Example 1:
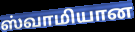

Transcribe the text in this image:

ஸ்வாமியான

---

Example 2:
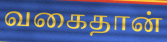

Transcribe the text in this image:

வகைதான்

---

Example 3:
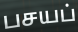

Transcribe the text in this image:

பசயப்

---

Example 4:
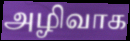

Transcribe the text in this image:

அழிவாக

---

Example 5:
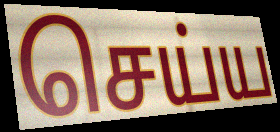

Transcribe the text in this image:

செய்ய